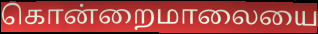
கொன்றைமாலையை